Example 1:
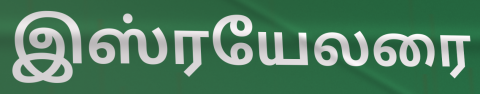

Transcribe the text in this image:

இஸ்ரயேலரை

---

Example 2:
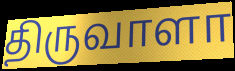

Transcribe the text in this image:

திருவாளா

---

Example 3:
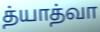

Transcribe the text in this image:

த்யாத்வா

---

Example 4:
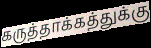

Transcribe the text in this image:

கருத்தாக்கத்துக்கு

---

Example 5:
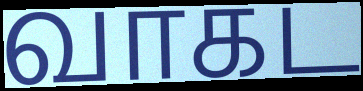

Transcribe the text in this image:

வாகட